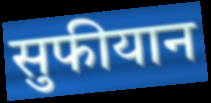
सुफीयान